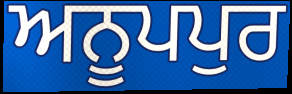
ਅਨੂਪਪੁਰ